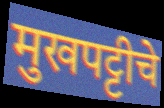
मुखपट्टीचे